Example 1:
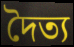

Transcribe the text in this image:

দৈত্য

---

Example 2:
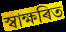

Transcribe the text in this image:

স্বাক্ষৰিত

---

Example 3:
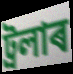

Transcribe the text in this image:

ট্ৰলাৰ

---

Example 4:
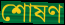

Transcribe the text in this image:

শোষণ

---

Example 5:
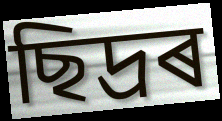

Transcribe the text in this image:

ছিদ্ৰৰ